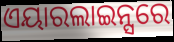
ଏୟାରଲାଇନ୍ସରେ